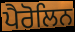
ਪੈਰੋਲਿਨ